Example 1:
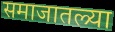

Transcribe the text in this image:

समाजातल्या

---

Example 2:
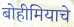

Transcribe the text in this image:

बोहीमियाचे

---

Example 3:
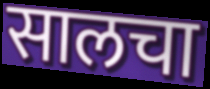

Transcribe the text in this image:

सालचा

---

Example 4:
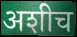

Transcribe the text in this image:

अशीच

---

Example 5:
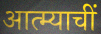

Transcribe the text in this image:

आत्म्याचीं